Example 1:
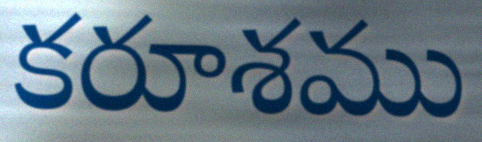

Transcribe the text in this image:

కరూశము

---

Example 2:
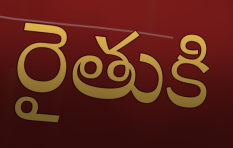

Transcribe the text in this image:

రైతుకి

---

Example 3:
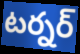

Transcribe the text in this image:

టర్నర్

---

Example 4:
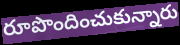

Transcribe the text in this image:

రూపొందించుకున్నారు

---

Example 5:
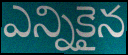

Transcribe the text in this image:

ఎన్నికైన